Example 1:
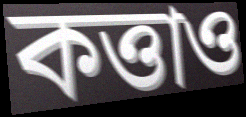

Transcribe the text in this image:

কত্তাও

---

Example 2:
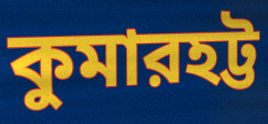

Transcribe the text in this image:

কুমারহট্ট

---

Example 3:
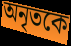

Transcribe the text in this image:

অনৃতকে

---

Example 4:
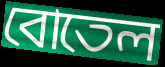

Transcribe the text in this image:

বোতেল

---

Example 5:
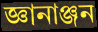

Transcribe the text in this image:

জ্ঞানাঞ্জন